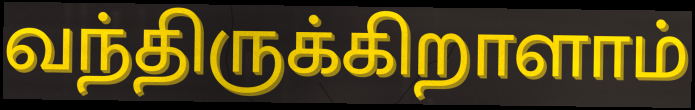
வந்திருக்கிறாளாம்